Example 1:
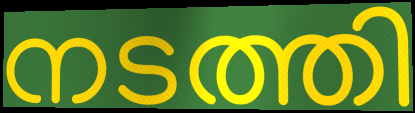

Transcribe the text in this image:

നടത്തി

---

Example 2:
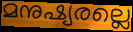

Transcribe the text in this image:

മനുഷ്യരല്ലെ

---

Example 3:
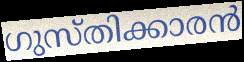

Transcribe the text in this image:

ഗുസ്തിക്കാരൻ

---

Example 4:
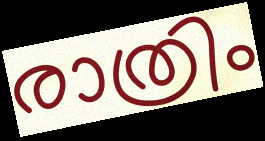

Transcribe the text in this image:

രാത്രിം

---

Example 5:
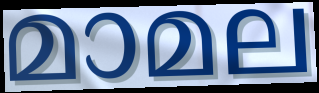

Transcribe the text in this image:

മാമല